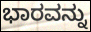
ಭಾರವನ್ನು